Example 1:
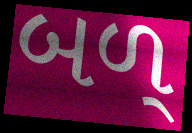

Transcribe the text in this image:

બળ્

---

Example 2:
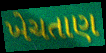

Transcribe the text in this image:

ખેચતાણ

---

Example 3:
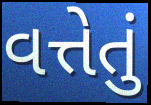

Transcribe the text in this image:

વત્તેતું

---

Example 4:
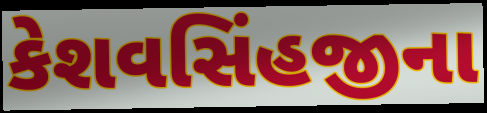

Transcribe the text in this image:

કેશવસિંહજીના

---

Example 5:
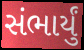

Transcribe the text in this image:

સંભાર્યું